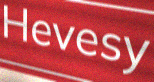
Hevesy